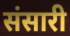
संसारी